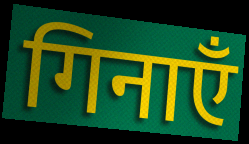
गिनाएँ